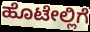
ಹೊಟೇಲ್ಲಿಗೆ